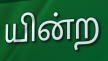
யின்ற